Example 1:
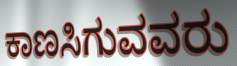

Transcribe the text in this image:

ಕಾಣಸಿಗುವವರು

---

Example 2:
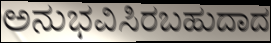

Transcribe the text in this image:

ಅನುಭವಿಸಿರಬಹುದಾದ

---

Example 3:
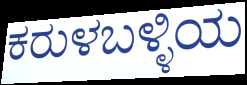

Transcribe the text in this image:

ಕರುಳಬಳ್ಳಿಯ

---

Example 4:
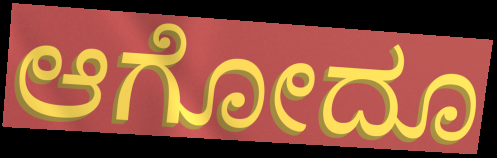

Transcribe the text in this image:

ಆಗೋದೂ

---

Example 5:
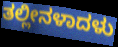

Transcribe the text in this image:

ತಲ್ಲೀನಳಾದಳು